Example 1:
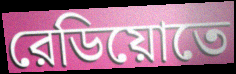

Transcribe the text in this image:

রেডিয়োতে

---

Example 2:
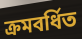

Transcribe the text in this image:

ক্রমবর্ধিত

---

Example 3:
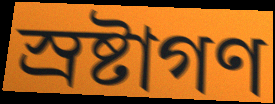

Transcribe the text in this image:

স্রষ্টাগণ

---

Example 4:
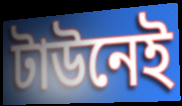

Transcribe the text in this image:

টাউনেই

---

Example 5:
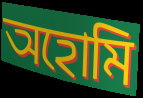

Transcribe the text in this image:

অহোমি